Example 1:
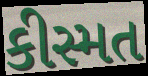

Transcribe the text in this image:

કીસ્મત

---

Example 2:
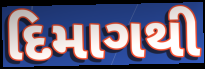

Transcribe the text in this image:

દિમાગથી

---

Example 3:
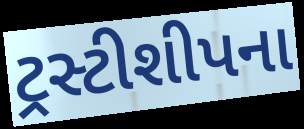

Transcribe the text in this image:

ટ્રસ્ટીશીપના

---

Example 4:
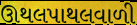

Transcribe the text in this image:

ઊથલપાથલવાળી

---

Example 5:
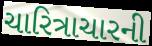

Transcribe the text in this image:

ચારિત્રાચારની